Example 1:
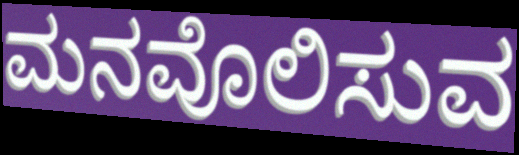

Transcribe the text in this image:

ಮನವೊಲಿಸುವ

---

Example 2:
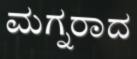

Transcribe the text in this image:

ಮಗ್ನರಾದ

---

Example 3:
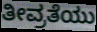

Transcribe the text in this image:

ತೀವ್ರತೆಯು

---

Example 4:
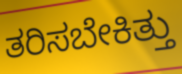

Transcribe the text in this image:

ತರಿಸಬೇಕಿತ್ತು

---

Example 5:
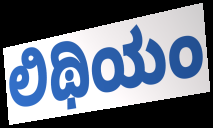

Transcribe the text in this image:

ಲಿಥಿಯಂ